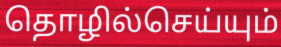
தொழில்செய்யும்